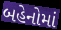
બહેનોમાં